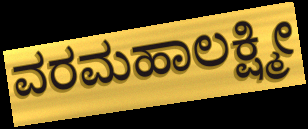
ವರಮಹಾಲಕ್ಷ್ಮೀ